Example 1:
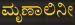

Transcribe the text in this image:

ಮೃಣಾಲಿನೀ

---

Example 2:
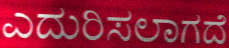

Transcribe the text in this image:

ಎದುರಿಸಲಾಗದೆ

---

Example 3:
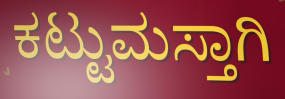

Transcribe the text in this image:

ಕಟ್ಟುಮಸ್ತಾಗಿ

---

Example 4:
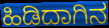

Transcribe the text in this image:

ಹಿಡಿದಾಗಿನ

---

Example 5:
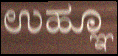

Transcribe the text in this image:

ಉಹ್ಞೂ